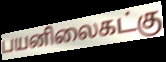
பயனிலைகட்கு